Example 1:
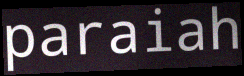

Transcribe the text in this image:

paraiah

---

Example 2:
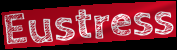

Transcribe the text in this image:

Eustress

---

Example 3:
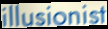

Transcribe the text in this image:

illusionist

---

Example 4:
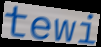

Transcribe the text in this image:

tewi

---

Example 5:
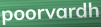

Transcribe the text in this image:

poorvardh